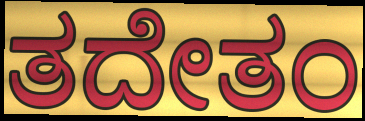
ತದೇತಂ